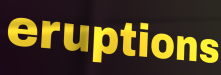
eruptions